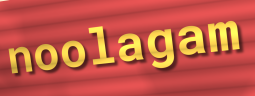
noolagam